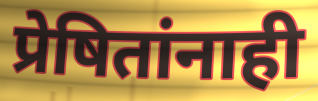
प्रेषितांनाही